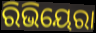
ରିଭିୟେରା